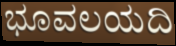
ಭೂವಲಯದಿ